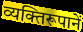
व्यक्तिरूपानें